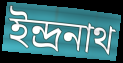
ইন্দ্ৰনাথ